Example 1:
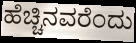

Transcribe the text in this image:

ಹೆಚ್ಚಿನವರೆಂದು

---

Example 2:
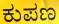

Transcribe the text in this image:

ಕುಪಣ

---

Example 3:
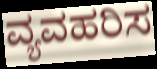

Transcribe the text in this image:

ವ್ಯವಹರಿಸ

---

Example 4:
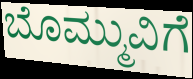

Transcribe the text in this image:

ಬೊಮ್ಮುವಿಗೆ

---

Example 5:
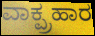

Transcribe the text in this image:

ವಾಕ್ಪ್ರಹಾರ